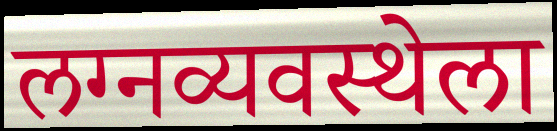
लग्नव्यवस्थेला